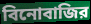
বিনোবাজির